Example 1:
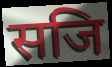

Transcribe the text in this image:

सजि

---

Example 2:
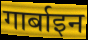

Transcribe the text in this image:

गार्बाइन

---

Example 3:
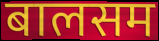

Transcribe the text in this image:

बालसम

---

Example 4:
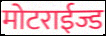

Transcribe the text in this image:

मोटराईज्ड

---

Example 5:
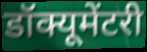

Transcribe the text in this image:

डॉक्यूमेंटरी